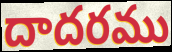
దాదరము